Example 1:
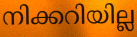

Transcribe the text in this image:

നിക്കറിയില്ല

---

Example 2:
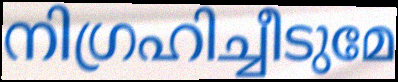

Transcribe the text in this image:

നിഗ്രഹിച്ചീടുമേ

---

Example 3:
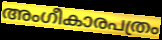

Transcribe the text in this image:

അംഗീകാരപത്രം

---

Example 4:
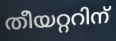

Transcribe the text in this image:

തീയറ്ററിന്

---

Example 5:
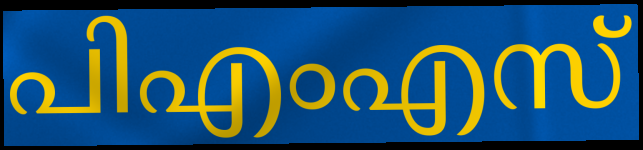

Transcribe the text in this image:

പിഎംഎസ്